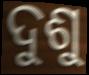
ଦୁଶୁ